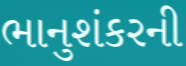
ભાનુશંકરની